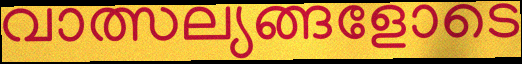
വാത്സല്യങ്ങളോടെ